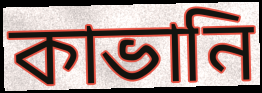
কাভানি